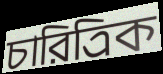
চারিত্রিক